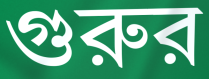
গুরুর